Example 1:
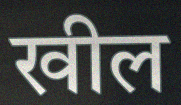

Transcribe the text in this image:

खील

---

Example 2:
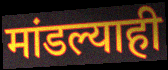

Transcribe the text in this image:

मांडल्याही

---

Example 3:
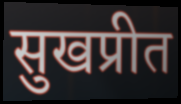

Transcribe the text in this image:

सुखप्रीत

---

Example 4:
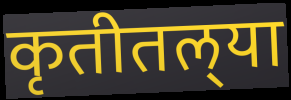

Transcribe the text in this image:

कृतीतल्या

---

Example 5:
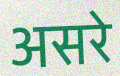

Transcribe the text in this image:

असरे